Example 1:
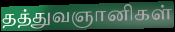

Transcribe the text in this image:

தத்துவஞானிகள்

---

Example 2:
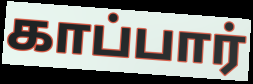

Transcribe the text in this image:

காப்பார்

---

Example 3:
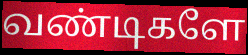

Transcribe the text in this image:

வண்டிகளே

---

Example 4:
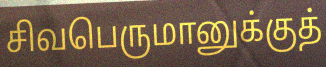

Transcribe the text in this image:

சிவபெருமானுக்குத்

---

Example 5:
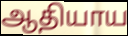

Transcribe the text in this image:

ஆதியாய